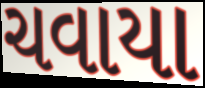
ચવાયા